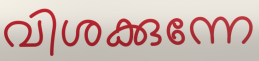
വിശക്കുന്നേ